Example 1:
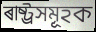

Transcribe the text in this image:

ৰাষ্ট্ৰসমূহক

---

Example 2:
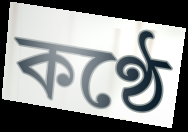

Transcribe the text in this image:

কণ্ঠে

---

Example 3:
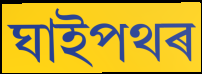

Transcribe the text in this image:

ঘাইপথৰ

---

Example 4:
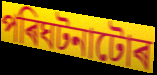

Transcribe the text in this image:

পৰিঘটনাটোৰ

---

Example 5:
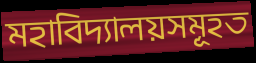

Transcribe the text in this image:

মহাবিদ্যালয়সমূহত